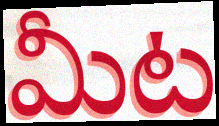
మీట